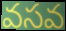
వసవ